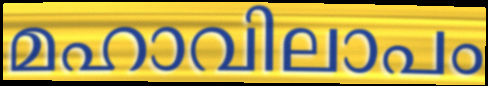
മഹാവിലാപം